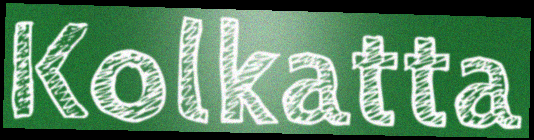
Kolkatta